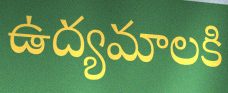
ఉద్యమాలకి